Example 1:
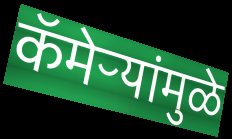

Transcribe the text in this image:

कॅमेऱ्यांमुळे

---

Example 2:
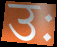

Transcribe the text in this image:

उः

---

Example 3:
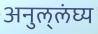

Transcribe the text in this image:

अनुल्लंघ्य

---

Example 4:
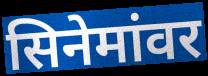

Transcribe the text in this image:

सिनेमांवर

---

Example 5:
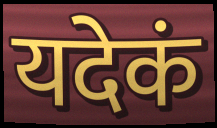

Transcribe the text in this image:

यदेकं